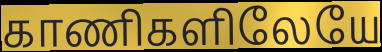
காணிகளிலேயே